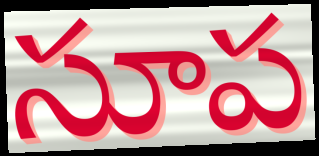
సూప